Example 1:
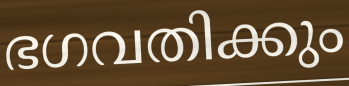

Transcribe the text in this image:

ഭഗവതിക്കും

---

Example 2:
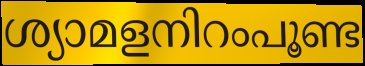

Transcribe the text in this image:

ശ്യാമളനിറംപൂണ്ട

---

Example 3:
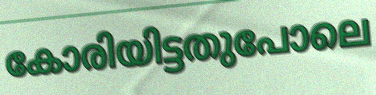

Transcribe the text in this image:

കോരിയിട്ടതുപോലെ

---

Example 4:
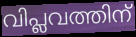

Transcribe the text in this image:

വിപ്ലവത്തിന്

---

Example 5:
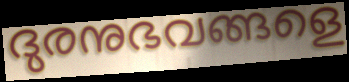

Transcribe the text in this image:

ദുരനുഭവങ്ങളെ